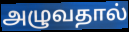
அழுவதால்